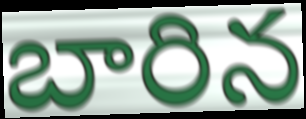
బారిన